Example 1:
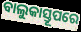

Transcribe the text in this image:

ବାଲୁକାସ୍ତୂପରେ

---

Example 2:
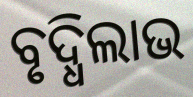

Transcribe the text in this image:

ବୃଦ୍ଧିଲାଭ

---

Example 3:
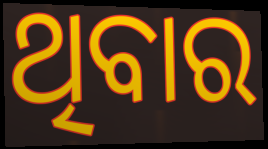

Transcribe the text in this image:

ଥିବାର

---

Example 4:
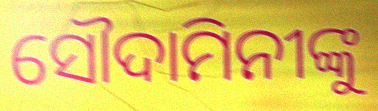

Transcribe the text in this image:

ସୌଦାମିନୀଙ୍କୁ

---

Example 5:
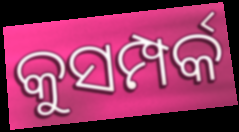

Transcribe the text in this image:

କୁସମ୍ପର୍କ